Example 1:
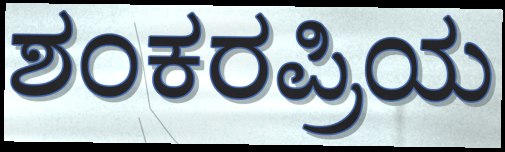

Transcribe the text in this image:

ಶಂಕರಪ್ರಿಯ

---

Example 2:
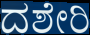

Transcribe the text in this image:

ದಶೇರಿ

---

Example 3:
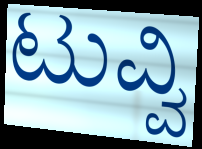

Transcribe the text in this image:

ಟುವ್ವಿ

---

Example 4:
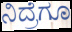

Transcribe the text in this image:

ನಿದ್ರೆಗೂ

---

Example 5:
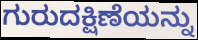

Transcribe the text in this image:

ಗುರುದಕ್ಷಿಣೆಯನ್ನು